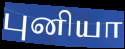
புனியா